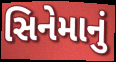
સિનેમાનું